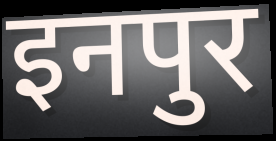
इनपुर